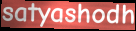
satyashodh